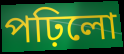
পঢ়িলো